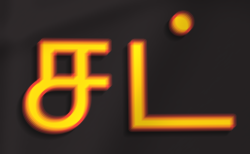
சட்